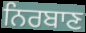
ਨਿਰਬਾਣ